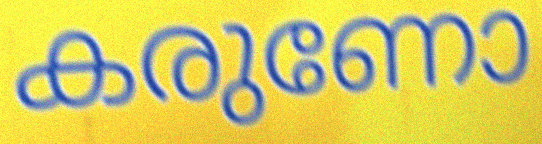
കരുണോ